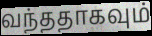
வந்ததாகவும்